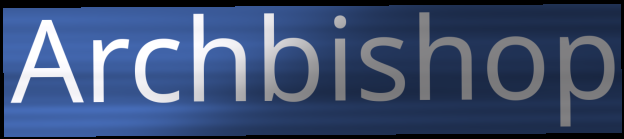
Archbishop